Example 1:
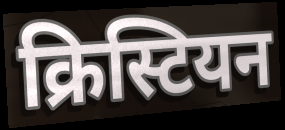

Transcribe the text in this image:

क्रिस्टियन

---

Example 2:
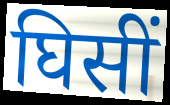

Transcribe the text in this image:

घिसीं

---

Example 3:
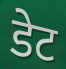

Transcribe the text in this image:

डेट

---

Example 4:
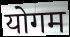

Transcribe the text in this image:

योगम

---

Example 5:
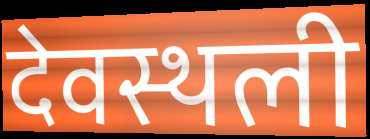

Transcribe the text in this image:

देवस्थली